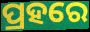
ପ୍ରହରେ